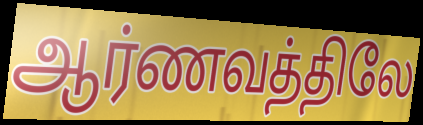
ஆர்ணவத்திலே